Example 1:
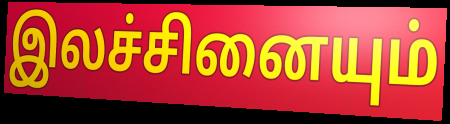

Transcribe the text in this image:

இலச்சினையும்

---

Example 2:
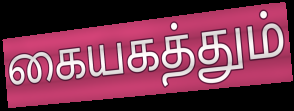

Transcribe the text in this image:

கையகத்தும்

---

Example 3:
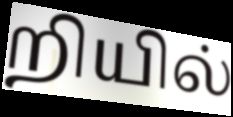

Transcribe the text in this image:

றியில்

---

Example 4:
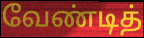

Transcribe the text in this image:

வேண்டித்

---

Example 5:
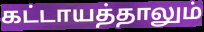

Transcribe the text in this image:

கட்டாயத்தாலும்